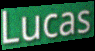
Lucas